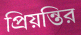
প্রিয়ন্তির